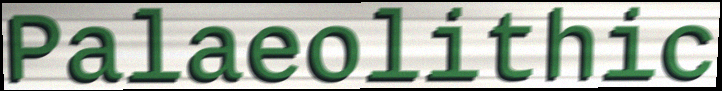
Palaeolithic